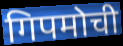
गिपमोची